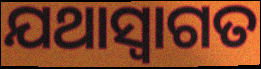
ଯଥାସ୍ଵାଗତ